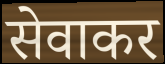
सेवाकर